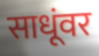
साधूंवर